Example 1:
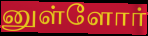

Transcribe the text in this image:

னுள்ளோர்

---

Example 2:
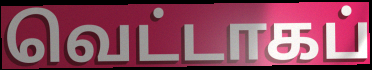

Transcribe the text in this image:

வெட்டாகப்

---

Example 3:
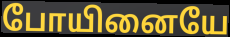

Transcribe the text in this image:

போயினையே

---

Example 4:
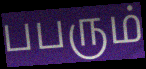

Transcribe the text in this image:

பபரும்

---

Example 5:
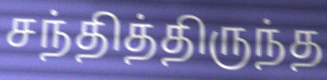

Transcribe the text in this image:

சந்தித்திருந்த